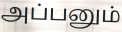
அப்பனும்